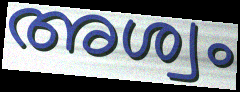
അശ്വം